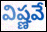
విష్ణవే